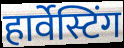
हार्वेस्टिंग